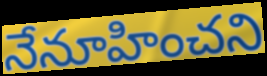
నేనూహించని